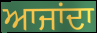
ਆਜਾਂਦਾ